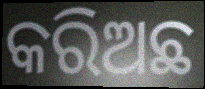
କରିଅଛ